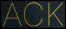
ACK